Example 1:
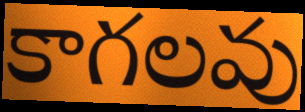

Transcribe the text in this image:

కాగలవు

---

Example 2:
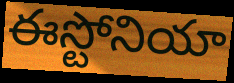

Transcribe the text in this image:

ఈస్టోనియా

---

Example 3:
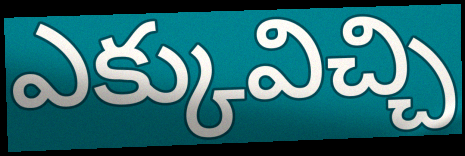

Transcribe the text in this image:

ఎక్కువిచ్చి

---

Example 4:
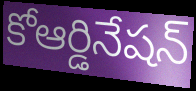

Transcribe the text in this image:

కోఆర్డినేషన్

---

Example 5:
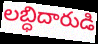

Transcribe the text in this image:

లబ్ధిదారుడి